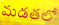
మడతలో